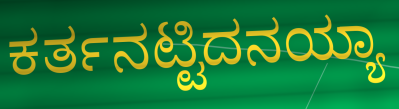
ಕರ್ತನಟ್ಟಿದನಯ್ಯಾ